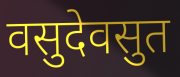
वसुदेवसुत